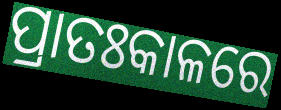
ପ୍ରାତଃକାଳରେ